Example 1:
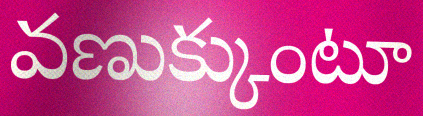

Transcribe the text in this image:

వణుక్కుంటూ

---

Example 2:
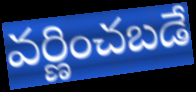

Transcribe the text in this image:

వర్ణించబడే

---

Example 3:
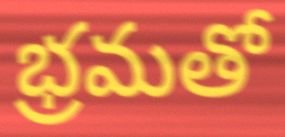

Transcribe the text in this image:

భ్రమతో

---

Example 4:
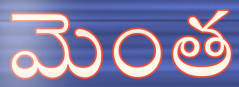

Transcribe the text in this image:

మెంత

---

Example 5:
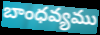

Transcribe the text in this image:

బాంధవ్యము